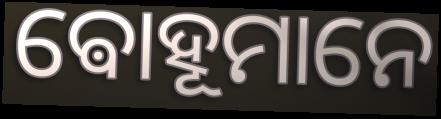
ଵୋହୂମାନେ